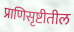
प्राणिसृष्टीतील